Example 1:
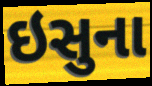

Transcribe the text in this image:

ઇસુના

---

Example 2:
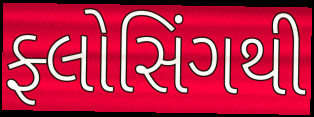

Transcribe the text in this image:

ફ્લોસિંગથી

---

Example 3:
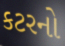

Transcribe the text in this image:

કટરનો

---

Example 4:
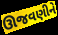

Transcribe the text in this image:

ઊજવણીને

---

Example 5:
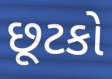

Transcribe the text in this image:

છૂટકો